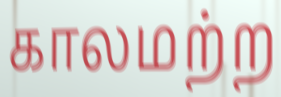
காலமற்ற